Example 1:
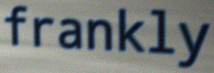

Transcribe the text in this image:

frankly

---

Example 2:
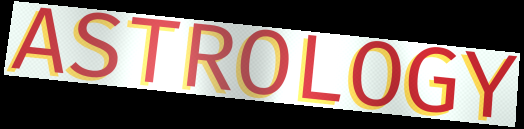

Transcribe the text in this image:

ASTROLOGY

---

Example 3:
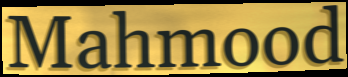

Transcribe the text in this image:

Mahmood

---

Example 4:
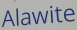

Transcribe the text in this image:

Alawite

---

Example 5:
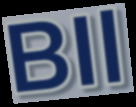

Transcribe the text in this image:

BIl